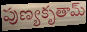
పుణ్యకృతామ్